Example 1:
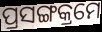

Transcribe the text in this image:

ପ୍ରସଙ୍ଗକ୍ରମେ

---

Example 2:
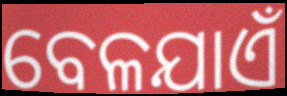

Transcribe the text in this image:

ବେଳଯାଏଁ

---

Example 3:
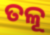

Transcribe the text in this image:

ତଳୂ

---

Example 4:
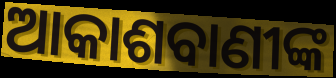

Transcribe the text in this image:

ଆକାଶବାଣୀଙ୍କ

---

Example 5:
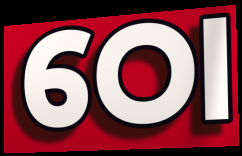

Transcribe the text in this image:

ଠୋ